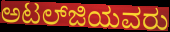
ಅಟಲ್‍ಜಿಯವರು